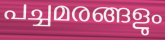
പച്ചമരങ്ങളും